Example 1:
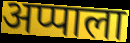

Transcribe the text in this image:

अप्पाला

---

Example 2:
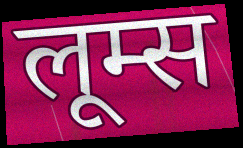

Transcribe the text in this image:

लूम्स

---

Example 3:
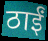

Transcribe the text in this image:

ठाईं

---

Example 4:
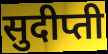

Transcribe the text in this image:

सुदीप्ती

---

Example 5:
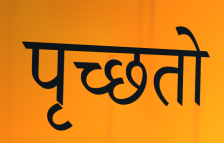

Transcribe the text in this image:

पृच्छतो